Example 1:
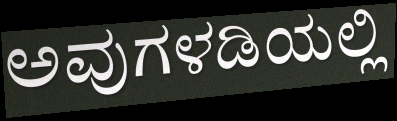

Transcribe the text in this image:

ಅವುಗಳಡಿಯಲ್ಲಿ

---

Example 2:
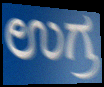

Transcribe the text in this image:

ಉಗ್ರ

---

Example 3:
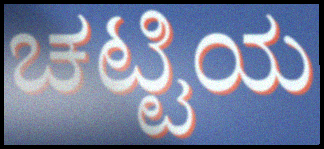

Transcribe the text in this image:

ಚಟ್ಟಿಯ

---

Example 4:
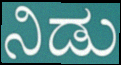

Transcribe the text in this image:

ನಿಡು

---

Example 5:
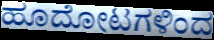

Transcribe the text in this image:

ಹೂದೋಟಗಳಿಂದ